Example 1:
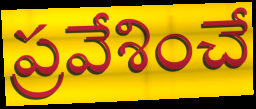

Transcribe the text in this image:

ప్రవేశించే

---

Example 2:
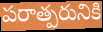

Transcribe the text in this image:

పరాత్పరునికి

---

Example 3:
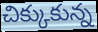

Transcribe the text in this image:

చిక్కుకున్న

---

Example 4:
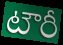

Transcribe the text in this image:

టౌరీ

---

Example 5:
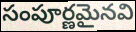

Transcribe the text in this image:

సంపూర్ణమైనవి